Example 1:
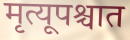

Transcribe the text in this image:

मृत्यूपश्चात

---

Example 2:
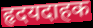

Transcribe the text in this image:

हृदयदाहक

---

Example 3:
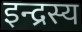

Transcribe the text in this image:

इन्द्रस्य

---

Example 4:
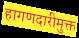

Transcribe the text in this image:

हागणदारीमुक्त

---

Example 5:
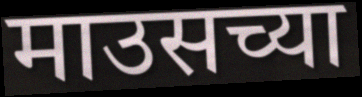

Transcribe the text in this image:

माउसच्या